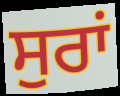
ਸੁਰਾਂ